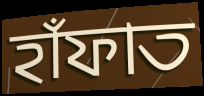
হাঁফাত